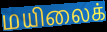
மயிலைக்